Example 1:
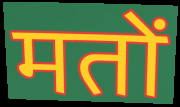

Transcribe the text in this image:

मतों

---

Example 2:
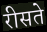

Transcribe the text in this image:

रीसते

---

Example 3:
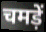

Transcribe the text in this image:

चमड़ें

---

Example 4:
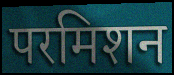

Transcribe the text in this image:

परमिशन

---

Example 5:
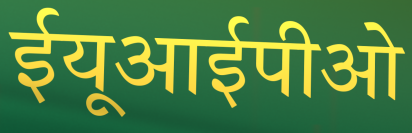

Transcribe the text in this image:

ईयूआईपीओ